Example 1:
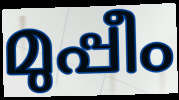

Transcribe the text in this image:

മുപ്പീം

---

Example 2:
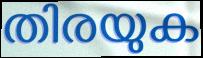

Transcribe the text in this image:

തിരയുക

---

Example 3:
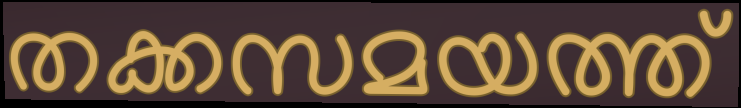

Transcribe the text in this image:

തക്കസമയത്ത്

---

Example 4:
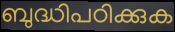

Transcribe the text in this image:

ബുദ്ധിപഠിക്കുക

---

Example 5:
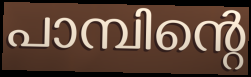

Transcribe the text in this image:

പാമ്പിന്റെ